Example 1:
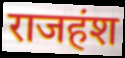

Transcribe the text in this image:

राजहंश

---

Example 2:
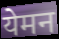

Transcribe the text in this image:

येमन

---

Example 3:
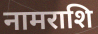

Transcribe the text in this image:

नामराशि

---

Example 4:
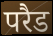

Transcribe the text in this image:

परैड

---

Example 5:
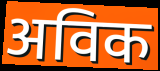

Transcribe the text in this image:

अविक